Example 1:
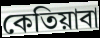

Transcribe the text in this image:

কেতিয়াবা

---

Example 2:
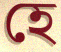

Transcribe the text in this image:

হে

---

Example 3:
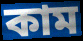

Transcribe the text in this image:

কাম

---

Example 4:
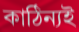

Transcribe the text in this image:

কাঠিন্যই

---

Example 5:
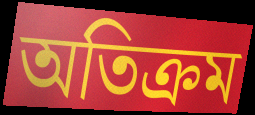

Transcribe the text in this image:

অতিক্ৰম